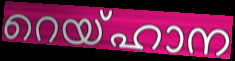
റെയ്ഹാന